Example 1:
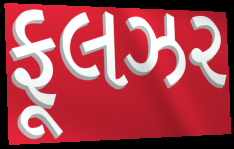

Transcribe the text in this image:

ફૂલઝર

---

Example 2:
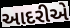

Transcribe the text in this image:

આદરીએ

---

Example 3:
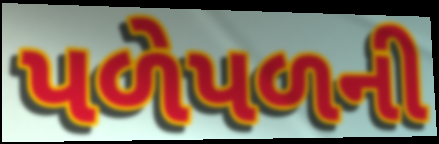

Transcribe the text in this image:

પળેપળની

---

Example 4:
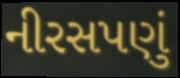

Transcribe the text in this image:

નીરસપણું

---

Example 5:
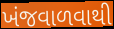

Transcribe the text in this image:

ખંજવાળવાથી